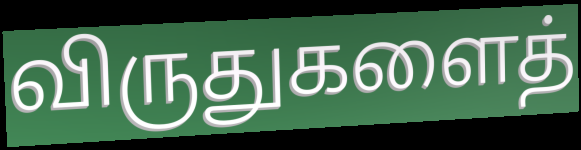
விருதுகளைத்